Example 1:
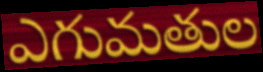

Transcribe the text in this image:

ఎగుమతుల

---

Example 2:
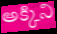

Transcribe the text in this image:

అక్కిని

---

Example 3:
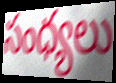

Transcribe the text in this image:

సంధ్యలు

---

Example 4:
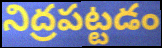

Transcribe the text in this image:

నిద్రపట్టడం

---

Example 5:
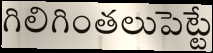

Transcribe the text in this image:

గిలిగింతలుపెట్టే